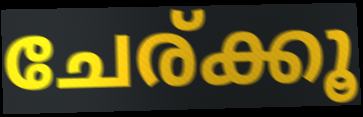
ചേര്ക്കൂ